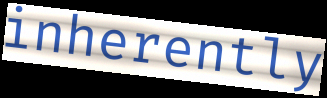
inherently